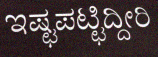
ಇಷ್ಟಪಟ್ಟಿದ್ದೀರಿ